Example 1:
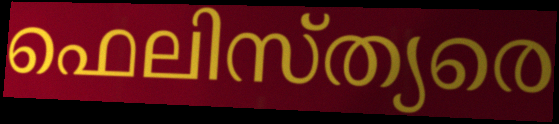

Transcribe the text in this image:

ഫെലിസ്ത്യരെ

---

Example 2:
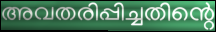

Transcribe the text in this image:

അവതരിപ്പിച്ചതിന്റെ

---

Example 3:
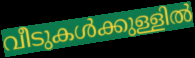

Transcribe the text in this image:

വീടുകൾക്കുള്ളിൽ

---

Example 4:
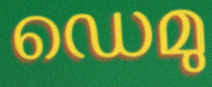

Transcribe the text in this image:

ഡെമു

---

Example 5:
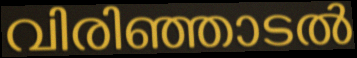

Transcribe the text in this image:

വിരിഞ്ഞാടൽ